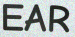
EAR